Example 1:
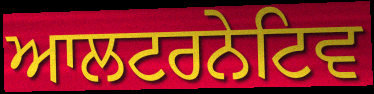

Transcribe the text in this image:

ਆਲਟਰਨੇਟਿਵ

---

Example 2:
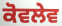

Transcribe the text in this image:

ਕੋਵਲੇਵ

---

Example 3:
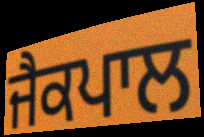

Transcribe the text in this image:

ਜੈਕਪਾਲ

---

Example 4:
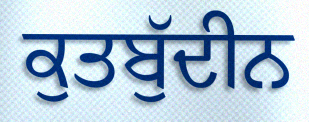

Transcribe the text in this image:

ਕੁਤਬੁੱਦੀਨ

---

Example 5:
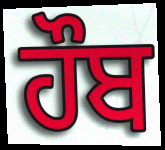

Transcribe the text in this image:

ਹੌਬ